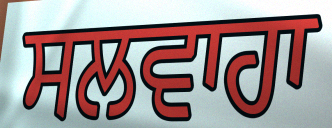
ਸਲਵਾਹਾ